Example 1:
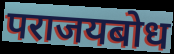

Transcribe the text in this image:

पराजयबोध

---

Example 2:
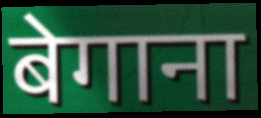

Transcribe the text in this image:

बेगाना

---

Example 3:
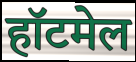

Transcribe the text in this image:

हॉटमेल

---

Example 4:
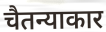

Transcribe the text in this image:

चैतन्याकार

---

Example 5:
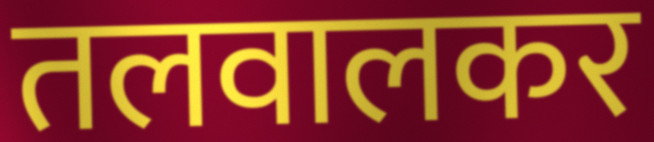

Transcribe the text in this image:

तलवालकर